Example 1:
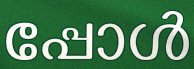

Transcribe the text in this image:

പ്പോൾ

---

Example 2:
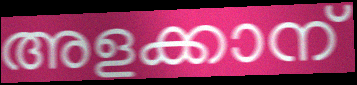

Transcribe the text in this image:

അളക്കാന്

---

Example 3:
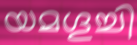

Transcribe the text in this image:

യമഗൂച്ചി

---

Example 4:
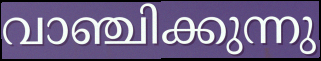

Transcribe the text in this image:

വാഞ്ചിക്കുന്നു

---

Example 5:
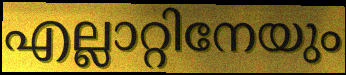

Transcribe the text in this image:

എല്ലാറ്റിനേയും